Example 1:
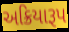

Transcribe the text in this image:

અક્રિયારૂપ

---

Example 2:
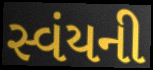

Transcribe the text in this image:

સ્વંયની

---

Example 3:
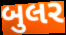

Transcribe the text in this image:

બુલર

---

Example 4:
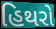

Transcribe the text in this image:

હિથરો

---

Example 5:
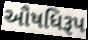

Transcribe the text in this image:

ઔષધિરૂપ